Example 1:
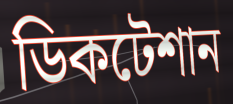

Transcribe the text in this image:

ডিকটেশান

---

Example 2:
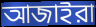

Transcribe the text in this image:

আজাইরা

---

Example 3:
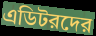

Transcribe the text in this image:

এডিটরদের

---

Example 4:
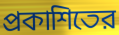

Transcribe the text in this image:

প্রকাশিতের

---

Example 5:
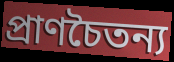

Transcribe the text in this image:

প্রাণচৈতন্য